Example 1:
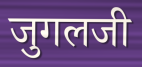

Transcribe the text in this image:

जुगलजी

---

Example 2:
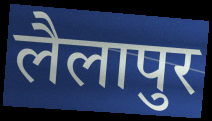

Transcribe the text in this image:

लैलापुर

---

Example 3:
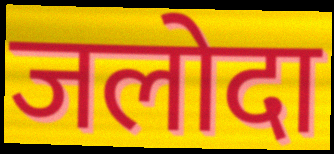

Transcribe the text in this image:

जलोदा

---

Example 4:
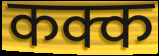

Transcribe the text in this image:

कक्क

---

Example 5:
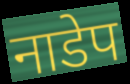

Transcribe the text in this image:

नाडेप